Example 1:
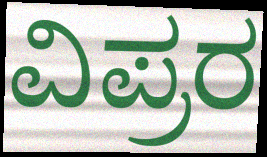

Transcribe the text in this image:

ವಿಪ್ರರ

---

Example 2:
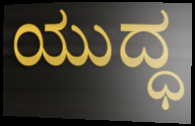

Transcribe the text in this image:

ಯುದ್ಧ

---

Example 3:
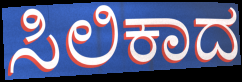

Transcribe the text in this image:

ಸಿಲಿಕಾದ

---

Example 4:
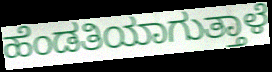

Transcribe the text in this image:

ಹೆಂಡತಿಯಾಗುತ್ತಾಳೆ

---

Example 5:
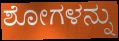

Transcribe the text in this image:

ಶೋಗಳನ್ನು